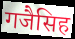
गजैसिह